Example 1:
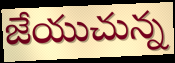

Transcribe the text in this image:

జేయుచున్న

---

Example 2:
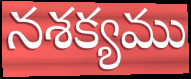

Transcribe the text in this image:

నశక్యము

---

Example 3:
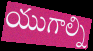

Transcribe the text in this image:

యుగాల్ని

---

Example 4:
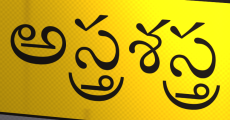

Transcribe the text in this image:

అస్త్రశస్త్ర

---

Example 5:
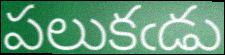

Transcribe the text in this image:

పలుకఁడు